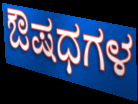
ಔಷಧಗಳ